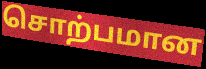
சொற்பமான